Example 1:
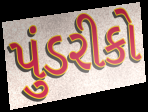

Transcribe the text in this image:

પુંડરીકો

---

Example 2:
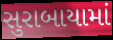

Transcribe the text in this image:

સુરાબાયામાં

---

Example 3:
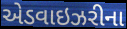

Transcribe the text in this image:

એડવાઇઝરીના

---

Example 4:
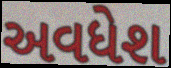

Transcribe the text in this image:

અવધેશ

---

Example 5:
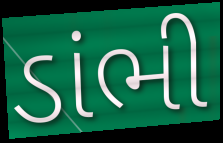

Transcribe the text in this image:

ડાંભી